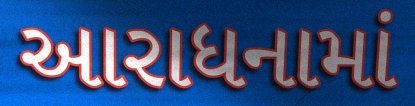
આરાધનામાં